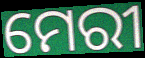
ମେରୀ